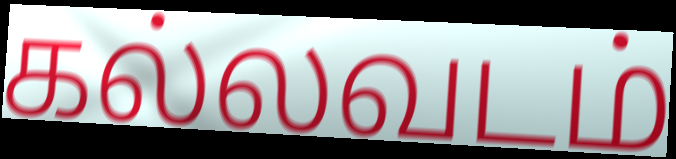
கல்லவடம்